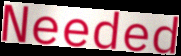
Needed